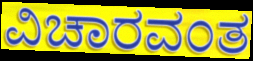
ವಿಚಾರವಂತ